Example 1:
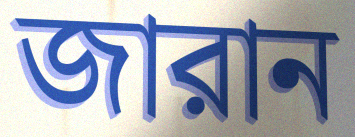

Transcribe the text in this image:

জারান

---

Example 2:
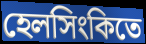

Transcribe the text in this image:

হেলসিংকিতে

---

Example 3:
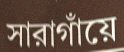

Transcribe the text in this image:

সারাগাঁয়ে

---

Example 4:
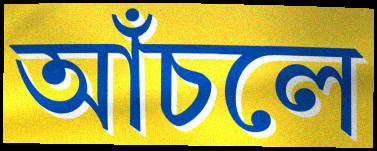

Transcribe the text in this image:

আঁচলে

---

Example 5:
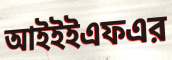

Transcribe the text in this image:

আইইইএফএর